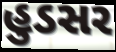
હુડસર